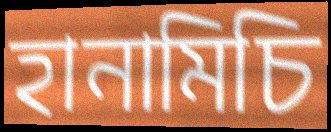
হানামিচি